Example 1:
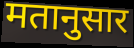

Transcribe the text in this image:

मतानुसार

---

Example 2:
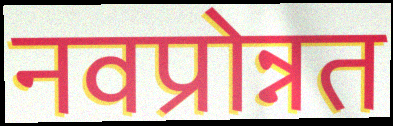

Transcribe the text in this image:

नवप्रोन्नत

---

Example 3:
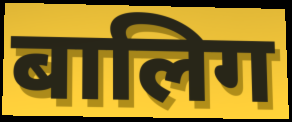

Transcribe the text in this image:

बालिग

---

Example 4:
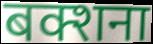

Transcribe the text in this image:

बक्शना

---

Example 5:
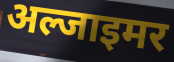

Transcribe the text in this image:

अल्जाइमर